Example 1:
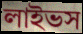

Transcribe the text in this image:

লাইভস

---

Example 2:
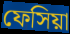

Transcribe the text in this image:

ফেসিয়া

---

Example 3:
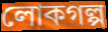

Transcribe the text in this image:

লোকগল্প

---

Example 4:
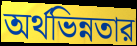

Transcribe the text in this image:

অর্থভিন্নতার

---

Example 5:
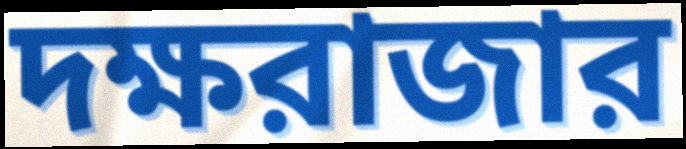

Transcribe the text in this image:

দক্ষরাজার